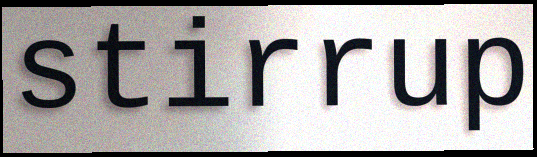
stirrup